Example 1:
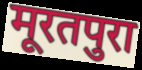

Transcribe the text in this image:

मूरतपुरा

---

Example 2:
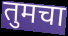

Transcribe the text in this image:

तुमचा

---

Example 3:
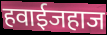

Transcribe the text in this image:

हवाईजहाज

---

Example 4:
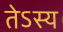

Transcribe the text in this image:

तेऽस्य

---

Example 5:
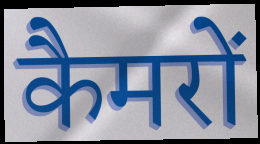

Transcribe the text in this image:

कैमरों